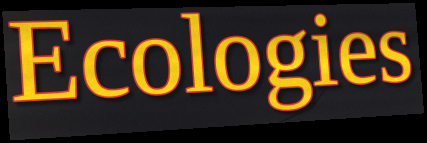
Ecologies